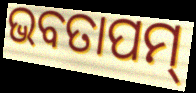
ଭବତାପମ୍